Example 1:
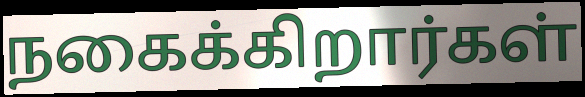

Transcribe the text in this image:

நகைக்கிறார்கள்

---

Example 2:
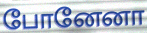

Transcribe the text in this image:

போனேனா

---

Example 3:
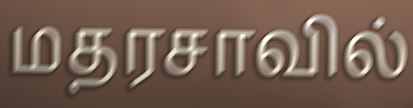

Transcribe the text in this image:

மதரசாவில்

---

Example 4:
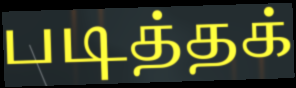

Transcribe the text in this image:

படித்தக்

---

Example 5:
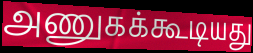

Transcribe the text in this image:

அணுகக்கூடியது